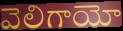
వెలిగాయో